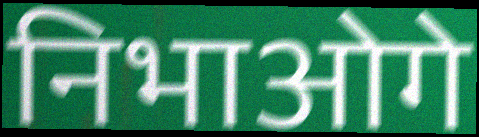
निभाओगे